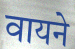
वायने